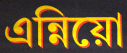
এন্নিয়ো